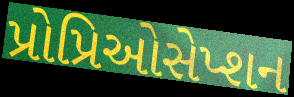
પ્રોપ્રિઓસેપ્શન